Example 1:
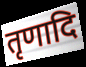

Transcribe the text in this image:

तृणादि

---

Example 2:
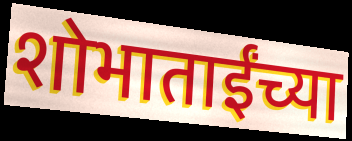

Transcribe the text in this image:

शोभाताईंच्या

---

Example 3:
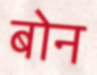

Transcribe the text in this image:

बोन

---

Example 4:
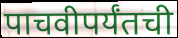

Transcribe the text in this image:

पाचवीपर्यंतची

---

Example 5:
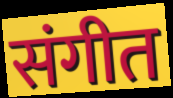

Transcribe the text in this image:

संगीत